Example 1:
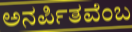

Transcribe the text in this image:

ಅನರ್ಪಿತವೆಂಬ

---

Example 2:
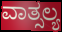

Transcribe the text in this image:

ವಾತ್ಸಲ್ಯ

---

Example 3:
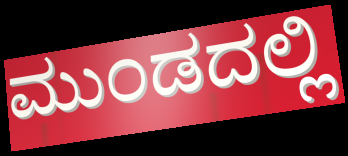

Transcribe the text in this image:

ಮುಂಡದಲ್ಲಿ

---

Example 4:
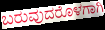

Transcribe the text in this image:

ಬರುವುದರೊಳಗಾಗಿ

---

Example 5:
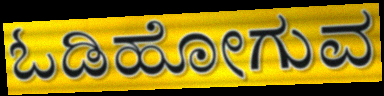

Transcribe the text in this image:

ಓಡಿಹೋಗುವ